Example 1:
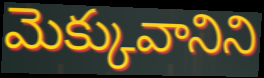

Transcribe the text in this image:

మెక్కువానిని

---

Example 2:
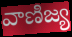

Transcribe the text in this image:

వాణిజ్య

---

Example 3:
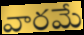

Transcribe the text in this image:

వారమే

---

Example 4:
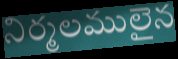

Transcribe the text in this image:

నిర్మలములైన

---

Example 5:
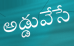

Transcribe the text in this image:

అడ్డువేసే